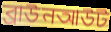
ব্রাউনআউট